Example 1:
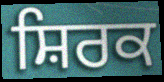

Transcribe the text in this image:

ਸ਼ਿਰਕ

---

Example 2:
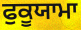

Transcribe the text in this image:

ਫੁਕੂਯਾਮਾ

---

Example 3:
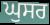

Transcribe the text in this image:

ਘੁਸਰ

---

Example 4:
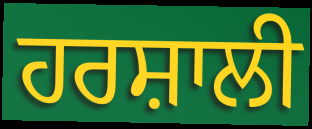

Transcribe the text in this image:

ਹਰਸ਼ਾਲੀ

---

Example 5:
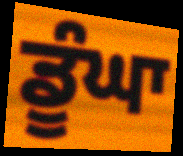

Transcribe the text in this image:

ਡੂੰਘਾ